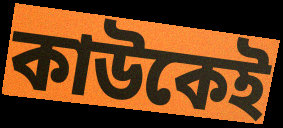
কাউকেই